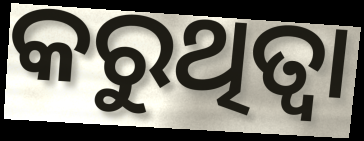
କରୁଥିତ୍ବା